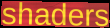
shaders